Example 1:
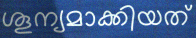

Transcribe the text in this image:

ശൂന്യമാക്കിയത്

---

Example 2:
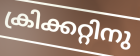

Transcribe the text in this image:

ക്രിക്കറ്റിനു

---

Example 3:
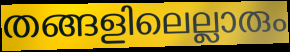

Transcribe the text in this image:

തങ്ങളിലെല്ലാരും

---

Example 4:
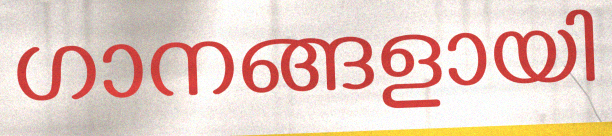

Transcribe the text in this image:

ഗാനങ്ങളായി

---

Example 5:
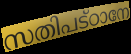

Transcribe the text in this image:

സതിപട്ഠാനേ